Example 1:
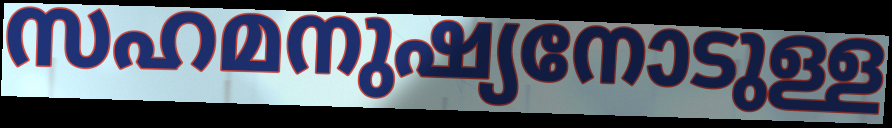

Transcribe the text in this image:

സഹമനുഷ്യനോടുള്ള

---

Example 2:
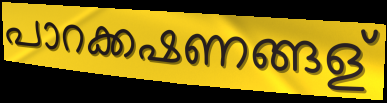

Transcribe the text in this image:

പാറക്കഷണങ്ങള്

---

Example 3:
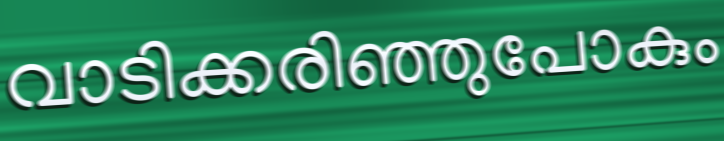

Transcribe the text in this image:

വാടിക്കരിഞ്ഞുപോകും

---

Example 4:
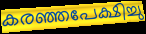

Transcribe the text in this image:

കരഞ്ഞപേക്ഷിച്ചു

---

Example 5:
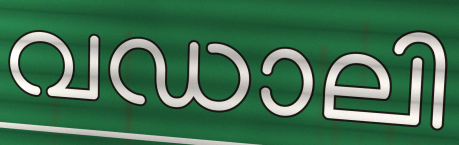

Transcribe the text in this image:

വഡാലി